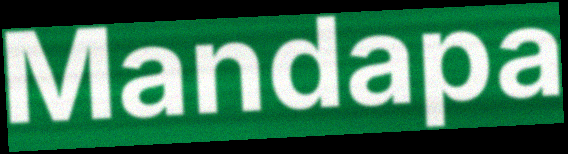
Mandapa